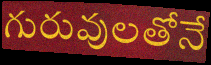
గురువులతోనే